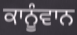
ਕਾਨੂੰਵਾਨ